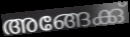
അങ്ങേക്കു്